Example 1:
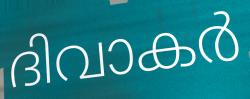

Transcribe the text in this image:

ദിവാകർ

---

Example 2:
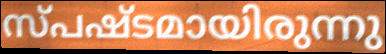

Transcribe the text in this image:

സ്പഷ്ടമായിരുന്നു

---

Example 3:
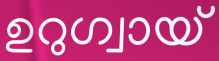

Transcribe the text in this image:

ഉറുഗ്വായ്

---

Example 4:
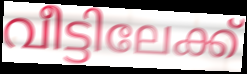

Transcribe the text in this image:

വീട്ടിലേക്ക്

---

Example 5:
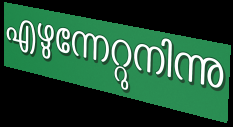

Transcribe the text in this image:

എഴുന്നേറ്റുനിന്നു